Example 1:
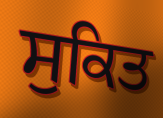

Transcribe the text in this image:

ਸੁਕਿਤ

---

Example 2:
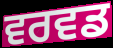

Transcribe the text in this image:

ਵਰਵਡ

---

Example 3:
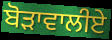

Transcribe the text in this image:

ਬੋੜਾਵਾਲੀਏ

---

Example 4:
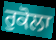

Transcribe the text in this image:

ਰੁਕੋਲਾ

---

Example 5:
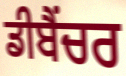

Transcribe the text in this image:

ਡੀਬੈਂਚਰ